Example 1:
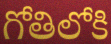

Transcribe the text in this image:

గోతిలోకి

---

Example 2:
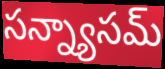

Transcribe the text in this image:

సన్న్యాసమ్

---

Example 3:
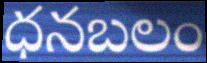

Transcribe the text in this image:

ధనబలం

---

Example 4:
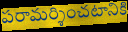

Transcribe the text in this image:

పరామర్శించటానికి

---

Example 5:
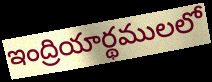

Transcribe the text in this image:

ఇంద్రియార్థములలో